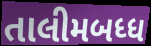
તાલીમબધ્ધ